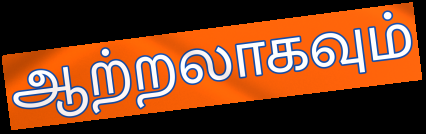
ஆற்றலாகவும்